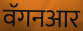
वॅगनआर